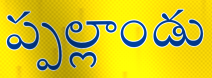
ప్పల్లాండు